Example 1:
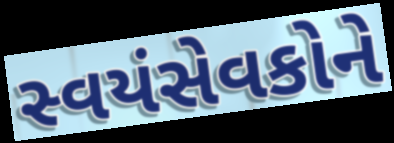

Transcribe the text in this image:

સ્વયંસેવકોને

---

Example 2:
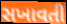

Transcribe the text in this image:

સખાવતી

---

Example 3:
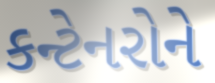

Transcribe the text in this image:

કન્ટેનરોને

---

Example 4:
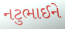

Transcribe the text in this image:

નટુભાઈને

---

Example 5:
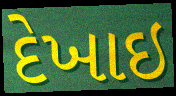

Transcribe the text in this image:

દેખાઇ